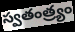
స్వతంత్ర్యం